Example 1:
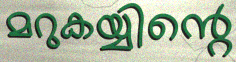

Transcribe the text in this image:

മറുകയ്യിന്റെ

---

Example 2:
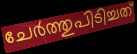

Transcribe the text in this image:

ചേർത്തുപിടിച്ചത്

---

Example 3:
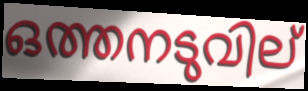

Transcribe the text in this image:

ഒത്തനടുവില്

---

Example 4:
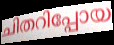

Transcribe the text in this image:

ചിതറിപ്പോയ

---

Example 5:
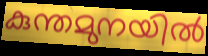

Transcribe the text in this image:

കുന്തമുനയിൽ